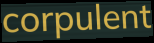
corpulent